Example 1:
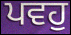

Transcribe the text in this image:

ਪਵਹੁ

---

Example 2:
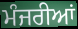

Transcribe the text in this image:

ਮੰਜਰੀਆਂ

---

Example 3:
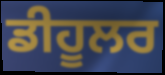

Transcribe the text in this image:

ਡੀਹੂਲਰ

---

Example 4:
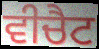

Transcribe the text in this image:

ਵੀਚੈਟ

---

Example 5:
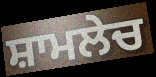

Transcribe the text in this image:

ਸ਼ਾਮਲੇਚ